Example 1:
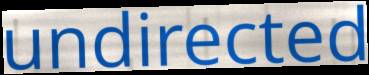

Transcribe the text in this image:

undirected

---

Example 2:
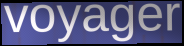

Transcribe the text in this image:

voyager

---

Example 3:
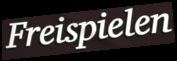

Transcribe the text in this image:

Freispielen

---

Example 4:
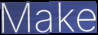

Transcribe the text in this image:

Make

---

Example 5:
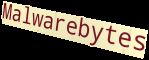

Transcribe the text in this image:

Malwarebytes